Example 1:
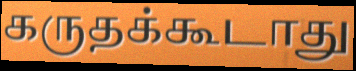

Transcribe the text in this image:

கருதக்கூடாது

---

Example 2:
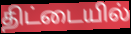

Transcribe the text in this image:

திட்டையில்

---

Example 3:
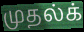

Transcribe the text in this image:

முதல்க்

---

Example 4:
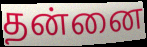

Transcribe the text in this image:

தன்னை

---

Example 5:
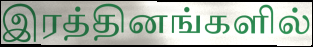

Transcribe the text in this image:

இரத்தினங்களில்